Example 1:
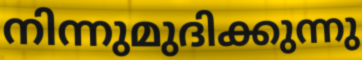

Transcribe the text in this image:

നിന്നുമുദിക്കുന്നു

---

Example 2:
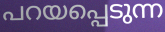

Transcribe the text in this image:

പറയപ്പെടുന്ന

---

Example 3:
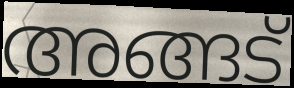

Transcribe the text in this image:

അങ്ങട്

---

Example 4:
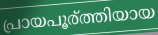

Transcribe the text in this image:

പ്രായപൂര്ത്തിയായ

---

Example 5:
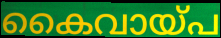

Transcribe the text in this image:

കൈവായ്പ